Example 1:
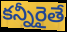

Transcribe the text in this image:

కన్నీరైతే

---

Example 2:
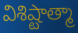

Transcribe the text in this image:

విశిష్టాత్మా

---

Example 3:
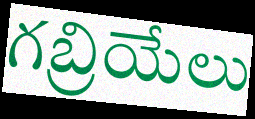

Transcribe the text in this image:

గబ్రియేలు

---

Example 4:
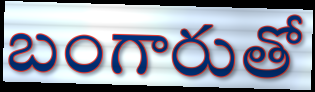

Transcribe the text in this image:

బంగారుతో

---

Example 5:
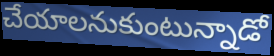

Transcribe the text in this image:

చేయాలనుకుంటున్నాడో